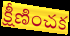
క్షీణించక